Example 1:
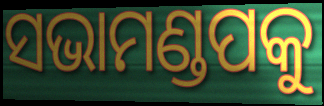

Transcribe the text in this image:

ସଭାମଣ୍ଡପକୁ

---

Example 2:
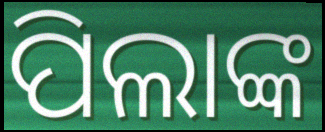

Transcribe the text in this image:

ପିଲାଙ୍କ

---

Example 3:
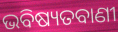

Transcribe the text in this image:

ଭବିଷ୍ୟତବାଣୀ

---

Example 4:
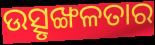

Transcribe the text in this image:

ଉତ୍ସୃଙ୍ଖଳତାର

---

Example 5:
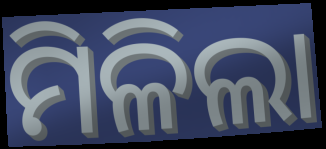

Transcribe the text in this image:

ମିଳିଲା